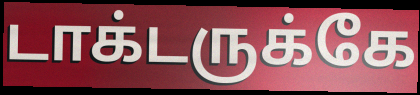
டாக்டருக்கே